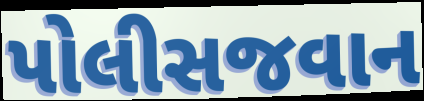
પોલીસજવાન